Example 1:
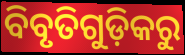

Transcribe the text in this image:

ବିବୃତିଗୁଡ଼ିକରୁ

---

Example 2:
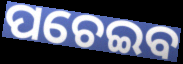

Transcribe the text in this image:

ପଚେଇବ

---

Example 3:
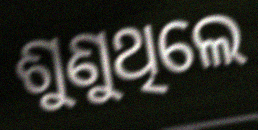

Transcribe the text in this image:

ଶୁଣୁଥିଲେ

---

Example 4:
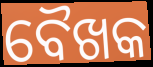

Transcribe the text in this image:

ବୈଖକ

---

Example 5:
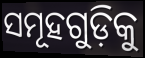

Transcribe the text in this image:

ସମୂହଗୁଡ଼ିକୁ